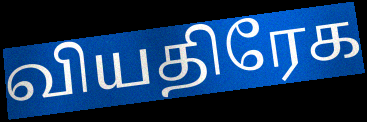
வியதிரேக